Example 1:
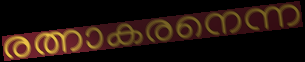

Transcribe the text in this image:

രത്നാകരനെന്ന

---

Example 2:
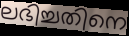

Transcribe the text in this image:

ലഭിച്ചതിനെ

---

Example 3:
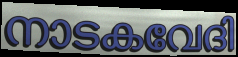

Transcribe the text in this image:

നാടകവേദി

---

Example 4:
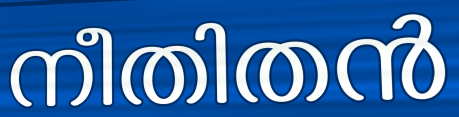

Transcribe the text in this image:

നീതിതൻ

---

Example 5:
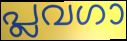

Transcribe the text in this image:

പ്ലവഗാ